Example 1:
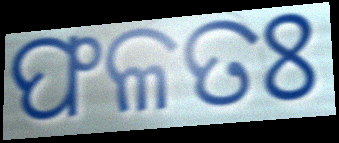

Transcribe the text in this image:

ଫଳତଃ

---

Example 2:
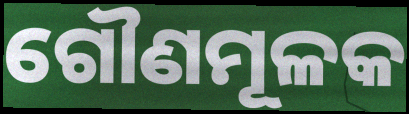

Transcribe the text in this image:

ଗୌଣମୂଳକ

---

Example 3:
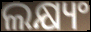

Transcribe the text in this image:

ଲକ୍ଷ୍ୟଂ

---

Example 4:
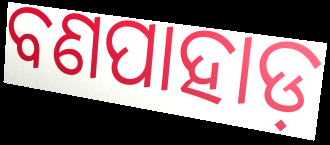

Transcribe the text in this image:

ବଣପାହାଡ଼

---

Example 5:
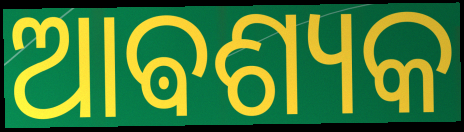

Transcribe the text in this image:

ଆଵଶ୍ୟକ